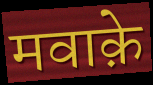
मवाक़े